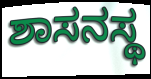
ಶಾಸನಸ್ಥ